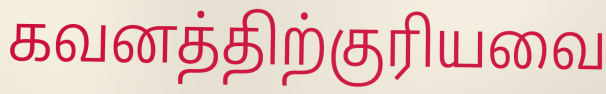
கவனத்திற்குரியவை